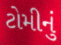
ટોમીનું